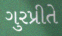
ગુરપ્રીતે